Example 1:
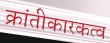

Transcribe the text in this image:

क्रांतीकारकत्व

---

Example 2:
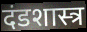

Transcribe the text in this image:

दंडशास्त्र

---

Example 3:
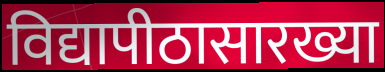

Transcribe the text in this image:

विद्यापीठासारख्या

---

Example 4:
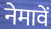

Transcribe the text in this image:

नेमावें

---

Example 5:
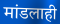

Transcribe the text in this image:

मांडलाही